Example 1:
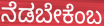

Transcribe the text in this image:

ನೆಡಬೇಕೆಂಬ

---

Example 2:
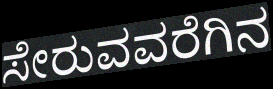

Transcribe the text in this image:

ಸೇರುವವರೆಗಿನ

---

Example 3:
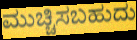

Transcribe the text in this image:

ಮುಚ್ಚಿಸಬಹುದು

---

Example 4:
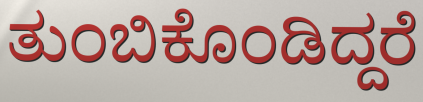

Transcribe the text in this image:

ತುಂಬಿಕೊಂಡಿದ್ದರೆ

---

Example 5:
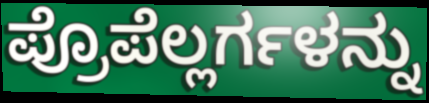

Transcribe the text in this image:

ಪ್ರೊಪೆಲ್ಲರ್ಗಳನ್ನು